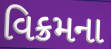
વિક્રમના